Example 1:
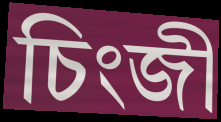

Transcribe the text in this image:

চিংজী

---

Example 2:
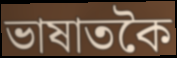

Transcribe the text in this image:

ভাষাতকৈ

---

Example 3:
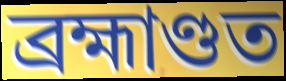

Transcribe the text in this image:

ব্ৰহ্মাণ্ডত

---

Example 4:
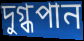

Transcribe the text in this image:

দুগ্ধপান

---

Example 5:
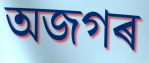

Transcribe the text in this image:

অজগৰ